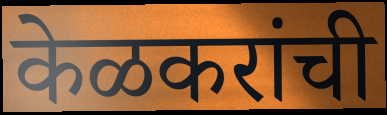
केळकरांची